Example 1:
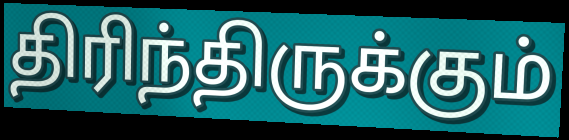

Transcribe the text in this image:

திரிந்திருக்கும்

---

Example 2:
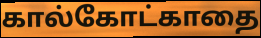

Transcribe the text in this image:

கால்கோட்காதை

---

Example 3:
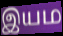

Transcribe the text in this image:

இயம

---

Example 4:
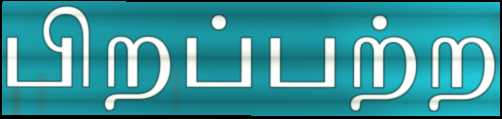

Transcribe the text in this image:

பிறப்பற்ற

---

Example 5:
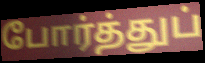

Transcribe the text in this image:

போர்த்துப்